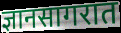
ज्ञानसागरात